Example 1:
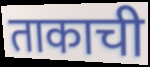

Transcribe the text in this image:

ताकाची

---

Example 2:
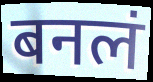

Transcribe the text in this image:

बनलं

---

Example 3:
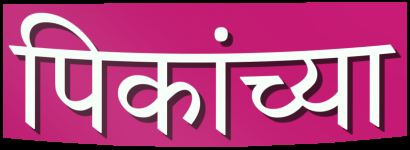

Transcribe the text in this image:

पिकांच्या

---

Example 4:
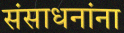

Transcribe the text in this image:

संसाधनांना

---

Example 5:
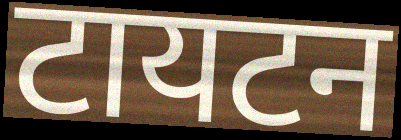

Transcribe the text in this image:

टायटन